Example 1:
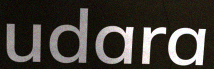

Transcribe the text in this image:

udara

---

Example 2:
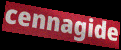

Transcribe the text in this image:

cennagide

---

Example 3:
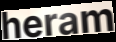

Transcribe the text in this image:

heram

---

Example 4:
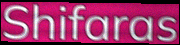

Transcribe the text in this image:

Shifaras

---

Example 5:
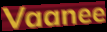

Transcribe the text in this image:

Vaanee